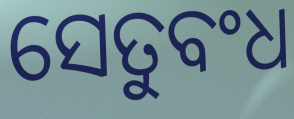
ସେତୁବଂଧ